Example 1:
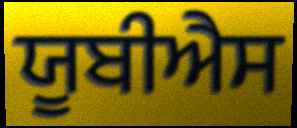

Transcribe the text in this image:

ਯੂਬੀਐਸ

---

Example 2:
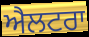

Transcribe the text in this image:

ਐਲਟਰਾ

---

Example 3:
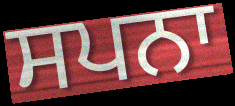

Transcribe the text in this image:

ਸਪਨਾ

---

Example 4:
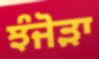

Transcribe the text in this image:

ਝੰਜੋੜਾ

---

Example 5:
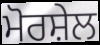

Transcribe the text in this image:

ਮੋਰਸ਼ੇਲ